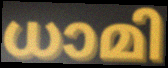
ധാമി